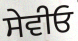
ਸੇਵੀਓ